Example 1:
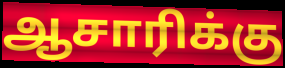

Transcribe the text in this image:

ஆசாரிக்கு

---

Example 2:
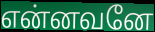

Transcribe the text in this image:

என்னவனே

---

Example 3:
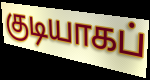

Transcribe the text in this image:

குடியாகப்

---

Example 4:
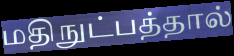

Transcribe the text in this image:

மதிநுட்பத்தால்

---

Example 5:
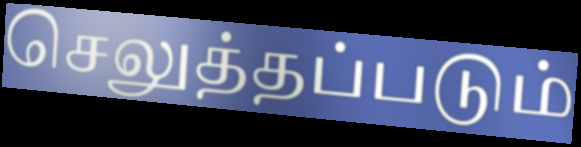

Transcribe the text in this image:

செலுத்தப்படும்